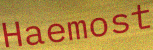
Haemost